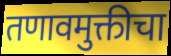
तणावमुक्तीचा